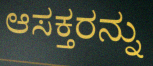
ಆಸಕ್ತರನ್ನು